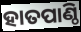
ହାତପାଣ୍ଠି